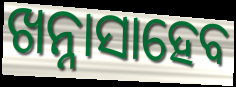
ଖନ୍ନାସାହେବ